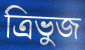
ত্ৰিভুজ